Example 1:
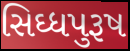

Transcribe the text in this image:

સિઘ્ધપુરૂષ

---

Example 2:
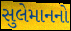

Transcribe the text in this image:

સુલેમાનનો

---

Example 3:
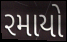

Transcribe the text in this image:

રમાયો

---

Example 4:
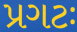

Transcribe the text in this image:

પ્રગટઃ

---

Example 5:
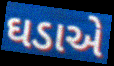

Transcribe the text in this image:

ઘડાએ